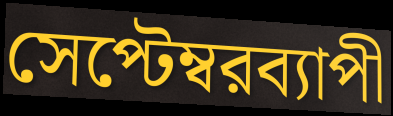
সেপ্টেম্বরব্যাপী